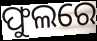
ଫୁଲରେ